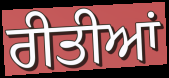
ਰੀਤੀਆਂ